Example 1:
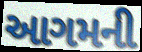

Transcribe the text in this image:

આગમની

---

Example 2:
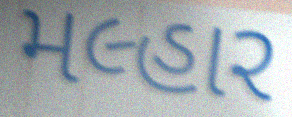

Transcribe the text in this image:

મલ્હાર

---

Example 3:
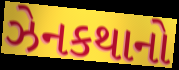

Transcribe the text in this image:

ઝેનકથાનો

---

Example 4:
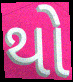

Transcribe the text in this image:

થો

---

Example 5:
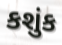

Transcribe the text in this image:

કશુંક